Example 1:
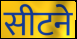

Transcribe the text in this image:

सीटने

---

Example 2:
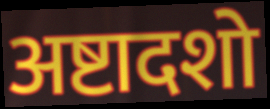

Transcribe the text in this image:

अष्टादशो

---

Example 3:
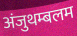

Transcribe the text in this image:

अंजुथम्बलम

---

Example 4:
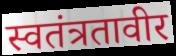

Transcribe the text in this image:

स्वतंत्रतावीर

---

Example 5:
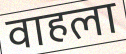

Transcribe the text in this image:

वाहला